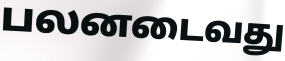
பலனடைவது